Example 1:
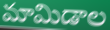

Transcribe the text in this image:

మామిడాల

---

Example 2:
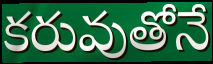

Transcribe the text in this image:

కరువుతోనే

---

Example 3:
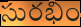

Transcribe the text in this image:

సురభిం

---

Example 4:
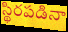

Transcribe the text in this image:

స్థిరపడినా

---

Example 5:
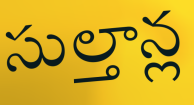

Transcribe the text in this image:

సుల్తాన్ల